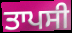
ਤਾਪਸੀ